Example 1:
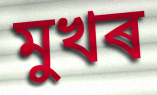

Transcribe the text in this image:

মুখৰ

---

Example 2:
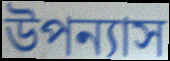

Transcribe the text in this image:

উপন্যাস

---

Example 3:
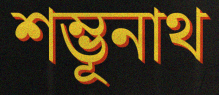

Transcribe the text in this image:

শম্ভূনাথ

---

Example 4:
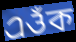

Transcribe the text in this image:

এওঁক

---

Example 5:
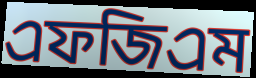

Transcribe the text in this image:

এফজিএম